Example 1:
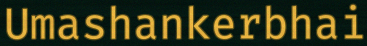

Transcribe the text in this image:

Umashankerbhai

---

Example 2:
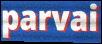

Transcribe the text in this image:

parvai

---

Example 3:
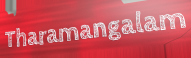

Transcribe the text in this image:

Tharamangalam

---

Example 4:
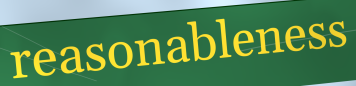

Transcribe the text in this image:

reasonableness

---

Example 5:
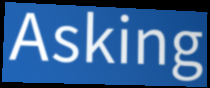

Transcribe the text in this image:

Asking